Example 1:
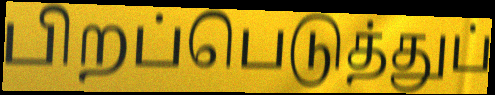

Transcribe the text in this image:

பிறப்பெடுத்துப்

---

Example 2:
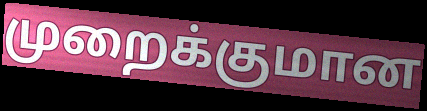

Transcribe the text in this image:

முறைக்குமான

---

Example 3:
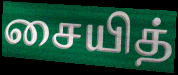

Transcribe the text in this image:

சையித்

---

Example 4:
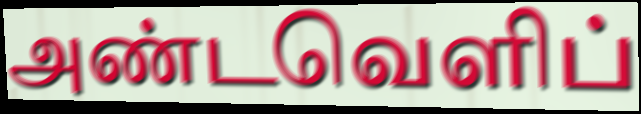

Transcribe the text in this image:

அண்டவெளிப்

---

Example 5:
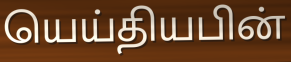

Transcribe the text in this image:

யெய்தியபின்